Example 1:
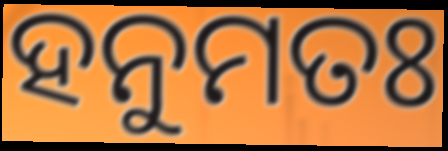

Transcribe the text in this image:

ହନୁମତଃ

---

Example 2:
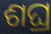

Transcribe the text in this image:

ଶଘ୍ର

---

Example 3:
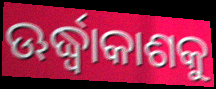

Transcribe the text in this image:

ଊର୍ଦ୍ଧ୍ୱାକାଶକୁ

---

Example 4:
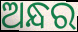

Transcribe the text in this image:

ଅନ୍ଧର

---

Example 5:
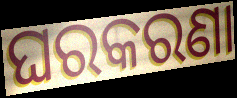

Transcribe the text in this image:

ଘରକରଣା